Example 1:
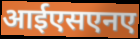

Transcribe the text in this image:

आईएसएनए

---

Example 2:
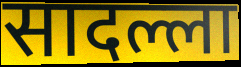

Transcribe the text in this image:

सादल्ला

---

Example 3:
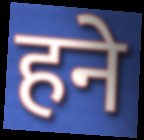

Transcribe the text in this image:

हने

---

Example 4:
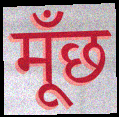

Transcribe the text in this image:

मूँछ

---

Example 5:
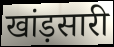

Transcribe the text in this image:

खांड़सारी